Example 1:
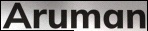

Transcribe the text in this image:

Aruman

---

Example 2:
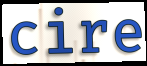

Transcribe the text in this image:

cire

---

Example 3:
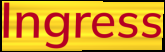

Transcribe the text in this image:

Ingress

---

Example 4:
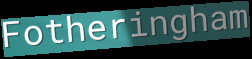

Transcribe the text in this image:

Fotheringham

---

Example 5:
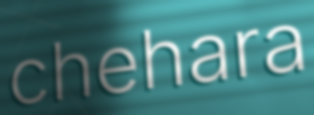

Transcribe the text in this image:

chehara